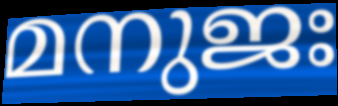
മനുജഃ